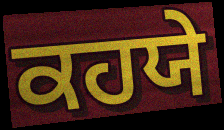
ਕਹਯੇ